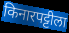
किनारपट्टीला